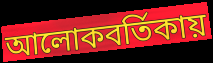
আলোকবর্তিকায়